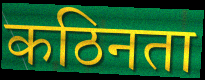
कठिनता